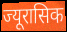
ज्यूरासिक